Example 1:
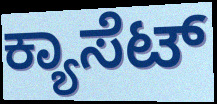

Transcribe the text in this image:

ಕ್ಯಾಸೆಟ್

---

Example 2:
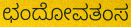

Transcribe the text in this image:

ಛಂದೋವತಂಸ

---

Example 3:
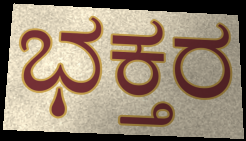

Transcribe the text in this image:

ಭಕ್ತರ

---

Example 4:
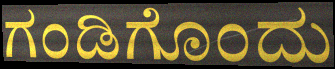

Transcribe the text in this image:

ಗಂಡಿಗೊಂದು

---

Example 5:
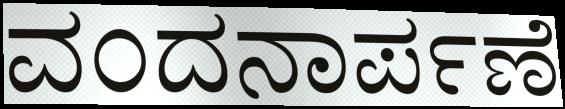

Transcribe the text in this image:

ವಂದನಾರ್ಪಣೆ